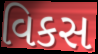
વિકસ